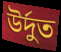
উৰ্দুত